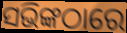
ସଭିଙ୍କଠାରେ